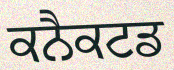
ਕਨੈਕਟਡ